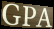
GPA